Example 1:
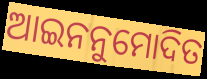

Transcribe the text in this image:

ଆଇନନୁମୋଦିତ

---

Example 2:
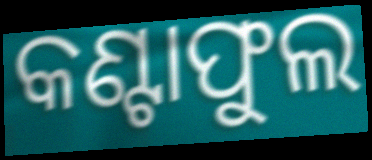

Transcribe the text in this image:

କଣ୍ଟାଫୁଲ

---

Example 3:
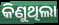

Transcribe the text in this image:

କିଣୁଥିଲା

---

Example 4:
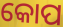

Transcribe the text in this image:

କୋପ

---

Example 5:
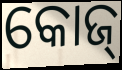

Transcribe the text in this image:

କୋଜ୍